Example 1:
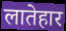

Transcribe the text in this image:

लातेहार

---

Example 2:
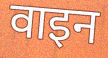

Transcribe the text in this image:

वाइन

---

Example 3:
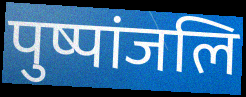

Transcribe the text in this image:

पुष्‍पांजलि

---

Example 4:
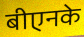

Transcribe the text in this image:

बीएनके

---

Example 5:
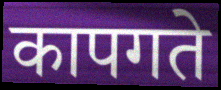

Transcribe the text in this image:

कापगते